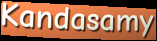
Kandasamy